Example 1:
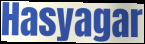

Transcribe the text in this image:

Hasyagar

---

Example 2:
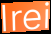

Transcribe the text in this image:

Irei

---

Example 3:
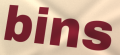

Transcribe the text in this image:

bins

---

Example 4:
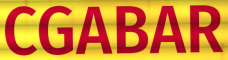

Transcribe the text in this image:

CGABAR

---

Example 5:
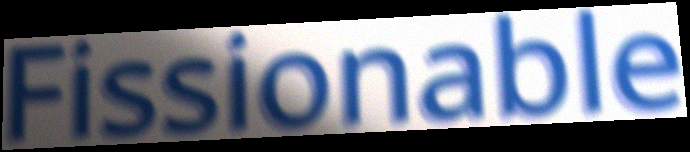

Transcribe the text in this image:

Fissionable